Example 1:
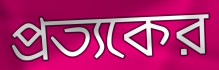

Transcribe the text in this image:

প্রত্যকের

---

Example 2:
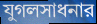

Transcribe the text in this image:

যুগলসাধনার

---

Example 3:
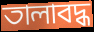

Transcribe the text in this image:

তালাবদ্ধ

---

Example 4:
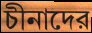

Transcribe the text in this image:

চীনাদের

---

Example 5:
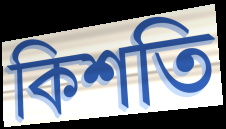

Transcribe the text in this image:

কিশতি